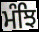
ਮੰਝਿ